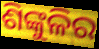
ଶିଙ୍କୁଳିର